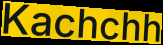
Kachchh